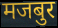
मजबुर